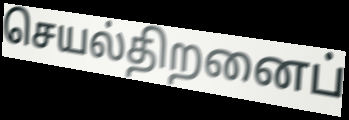
செயல்திறனைப்